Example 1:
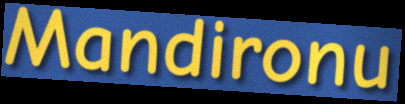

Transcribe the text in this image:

Mandironu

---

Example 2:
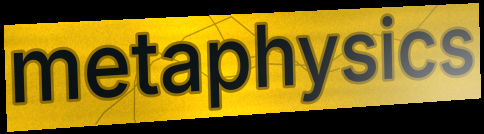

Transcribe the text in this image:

metaphysics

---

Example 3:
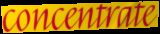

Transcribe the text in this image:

concentrate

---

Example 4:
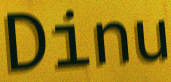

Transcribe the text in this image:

Dinu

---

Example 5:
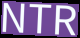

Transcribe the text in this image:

NTR